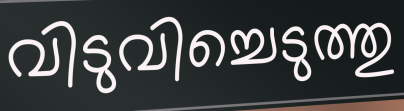
വിടുവിച്ചെടുത്തു